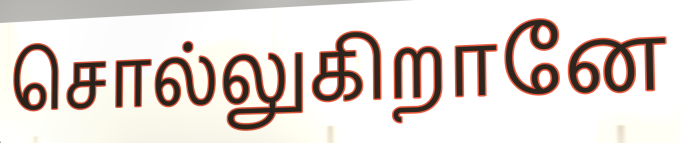
சொல்லுகிறானே